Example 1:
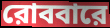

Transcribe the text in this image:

রোববারে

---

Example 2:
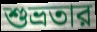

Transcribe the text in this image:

শুভ্রতার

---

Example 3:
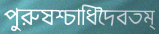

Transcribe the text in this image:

পুরুষশ্চাধিদৈবতম্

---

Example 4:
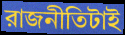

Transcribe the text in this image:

রাজনীতিটাই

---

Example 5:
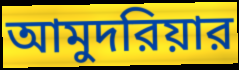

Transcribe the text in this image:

আমুদরিয়ার